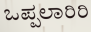
ಒಪ್ಪಲಾರಿರಿ